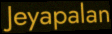
Jeyapalan